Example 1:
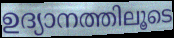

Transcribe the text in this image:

ഉദ്യാനത്തിലൂടെ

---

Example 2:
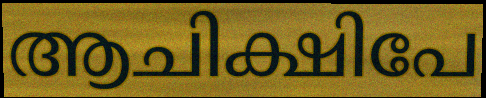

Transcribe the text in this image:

ആചിക്ഷിപേ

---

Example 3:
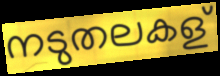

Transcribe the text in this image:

നടുതലകള്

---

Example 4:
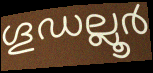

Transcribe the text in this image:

ഗൂഡല്ലൂർ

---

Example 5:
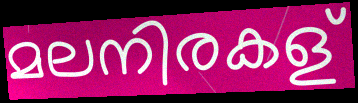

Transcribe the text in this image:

മലനിരകള്